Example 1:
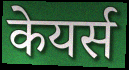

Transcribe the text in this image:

केयर्स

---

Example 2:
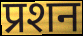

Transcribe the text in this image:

प्रशन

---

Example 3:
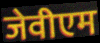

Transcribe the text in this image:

जेवीएम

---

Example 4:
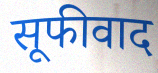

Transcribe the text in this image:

सूफीवाद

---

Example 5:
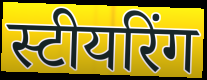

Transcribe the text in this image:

स्टीयरिंग